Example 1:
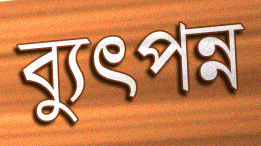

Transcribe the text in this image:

ব্যুৎপন্ন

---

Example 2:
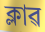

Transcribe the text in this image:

ক্লাৱ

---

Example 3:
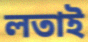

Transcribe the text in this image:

লতাই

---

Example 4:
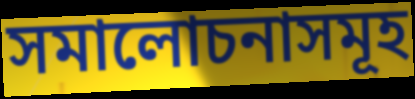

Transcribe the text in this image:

সমালোচনাসমূহ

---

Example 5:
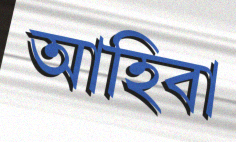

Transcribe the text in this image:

আহিবা